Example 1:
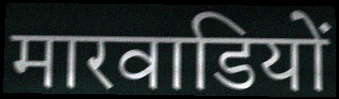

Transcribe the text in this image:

मारवाडियों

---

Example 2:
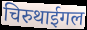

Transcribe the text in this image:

चिरुथाईगल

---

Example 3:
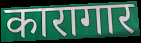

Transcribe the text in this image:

कारागार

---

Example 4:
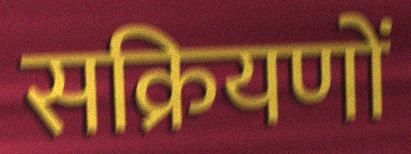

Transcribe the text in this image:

सक्रियणों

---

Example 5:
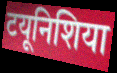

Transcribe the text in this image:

टयूनिशिया